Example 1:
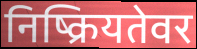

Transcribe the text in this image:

निष्क्रियतेवर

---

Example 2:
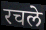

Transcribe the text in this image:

रचले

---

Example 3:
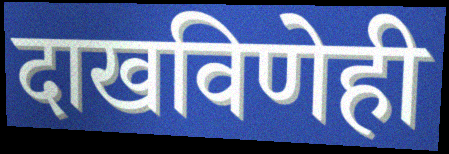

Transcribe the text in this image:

दाखविणेही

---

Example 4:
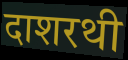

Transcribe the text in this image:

दाशरथी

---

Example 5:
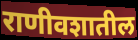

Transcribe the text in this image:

राणीवशातील